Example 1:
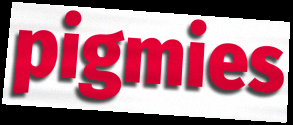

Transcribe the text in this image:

pigmies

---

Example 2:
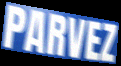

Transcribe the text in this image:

PARVEZ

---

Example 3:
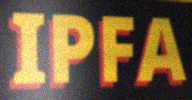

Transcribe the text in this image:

IPFA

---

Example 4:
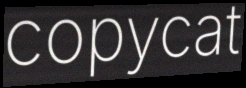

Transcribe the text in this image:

copycat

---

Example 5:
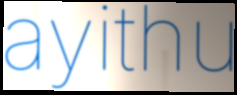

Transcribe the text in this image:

ayithu